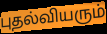
புதல்வியரும்